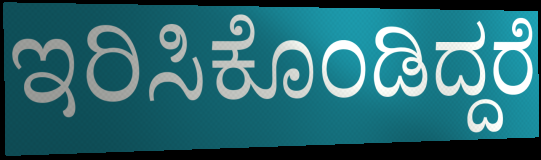
ಇರಿಸಿಕೊಂಡಿದ್ದರೆ